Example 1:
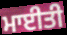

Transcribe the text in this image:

ਮਾਈਤੀ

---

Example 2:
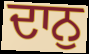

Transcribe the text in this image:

ਦਾਨੁ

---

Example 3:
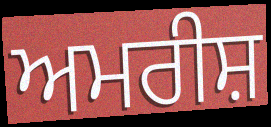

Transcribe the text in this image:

ਅਮਰੀਸ਼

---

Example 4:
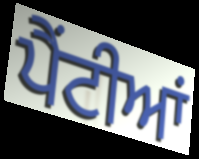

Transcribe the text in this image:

ਪੈਂਟੀਆਂ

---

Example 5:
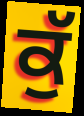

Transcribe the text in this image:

ਕੁੱ